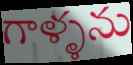
గాళ్ళను